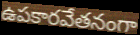
ఉపకారవేతనంగా